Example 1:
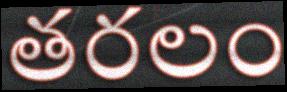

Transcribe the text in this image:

తరలం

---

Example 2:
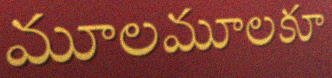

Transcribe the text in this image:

మూలమూలకూ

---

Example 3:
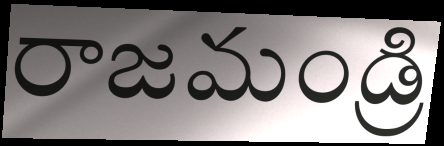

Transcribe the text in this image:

రాజమండ్రి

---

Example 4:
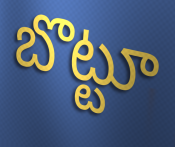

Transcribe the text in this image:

బొట్టూ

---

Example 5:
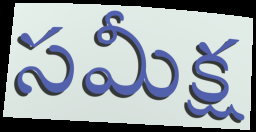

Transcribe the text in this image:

సమీక్ష